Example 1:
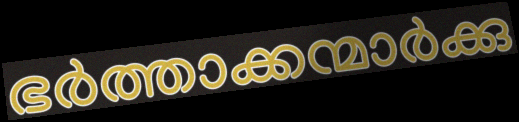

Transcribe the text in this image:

ഭർത്താക്കന്മാർക്കു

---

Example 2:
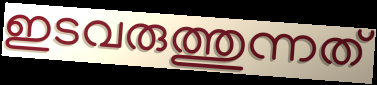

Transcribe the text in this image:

ഇടവരുത്തുന്നത്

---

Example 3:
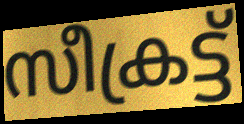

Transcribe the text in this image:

സീക്രട്ട്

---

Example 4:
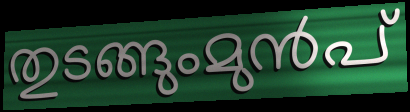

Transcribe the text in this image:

തുടങ്ങുംമുൻപ്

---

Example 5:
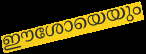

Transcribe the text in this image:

ഈശോയെയും